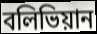
বলিভিয়ান